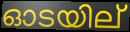
ഓടയില്